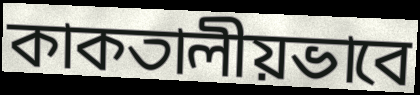
কাকতালীয়ভাবে